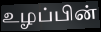
உழப்பின்